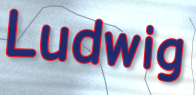
Ludwig